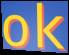
ok